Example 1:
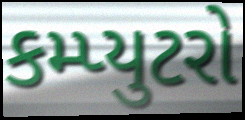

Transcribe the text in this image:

કમ્પ્યુટરો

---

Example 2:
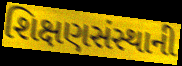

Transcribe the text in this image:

શિક્ષણસંસ્થાની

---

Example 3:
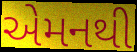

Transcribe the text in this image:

એમનથી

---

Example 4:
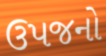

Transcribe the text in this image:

ઉપજનો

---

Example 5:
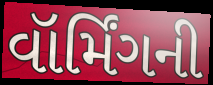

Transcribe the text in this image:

વૉર્મિંગની